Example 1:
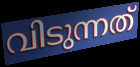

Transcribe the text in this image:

വിടുന്നത്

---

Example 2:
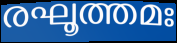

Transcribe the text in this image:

രഘൂത്തമഃ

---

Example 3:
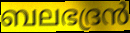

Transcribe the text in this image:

ബലഭദ്രൻ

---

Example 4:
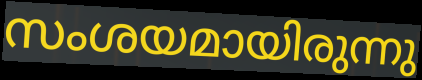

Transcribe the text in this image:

സംശയമായിരുന്നു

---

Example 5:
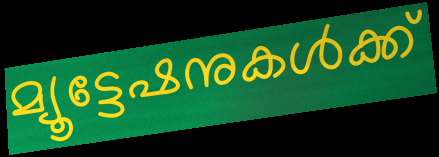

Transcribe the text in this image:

മ്യൂട്ടേഷനുകൾക്ക്